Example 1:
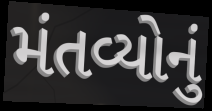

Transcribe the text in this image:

મંતવ્યોનું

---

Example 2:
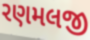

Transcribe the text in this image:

રણમલજી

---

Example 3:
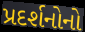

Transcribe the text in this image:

પ્રદર્શનોનો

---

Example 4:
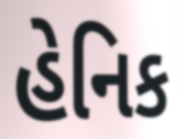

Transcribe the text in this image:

હેનિક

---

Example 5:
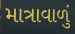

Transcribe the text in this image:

માત્રાવાળું